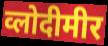
व्लोदीमीर